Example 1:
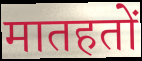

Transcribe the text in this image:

मातहतों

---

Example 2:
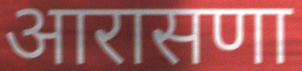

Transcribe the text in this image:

आरासणा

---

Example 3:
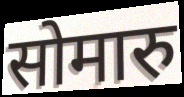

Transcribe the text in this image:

सोमारु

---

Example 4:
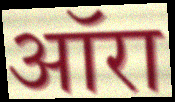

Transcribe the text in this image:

ऑरा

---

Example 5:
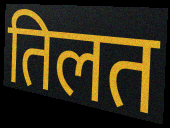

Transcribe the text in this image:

तिलत